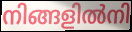
നിങ്ങളിൽനി